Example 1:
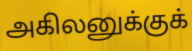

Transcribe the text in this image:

அகிலனுக்குக்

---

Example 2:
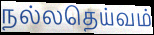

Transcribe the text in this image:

நல்லதெய்வம்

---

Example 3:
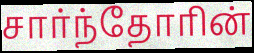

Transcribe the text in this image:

சார்ந்தோரின்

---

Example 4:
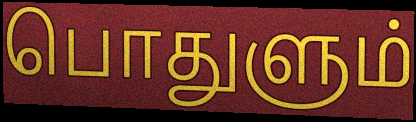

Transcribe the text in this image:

பொதுளும்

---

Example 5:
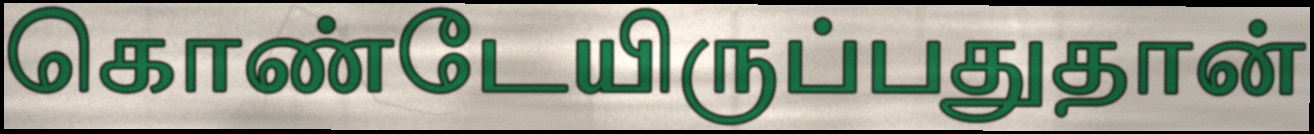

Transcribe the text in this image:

கொண்டேயிருப்பதுதான்